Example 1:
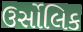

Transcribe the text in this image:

ઉર્સોલિક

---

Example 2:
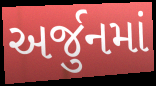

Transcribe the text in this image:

અર્જુનમાં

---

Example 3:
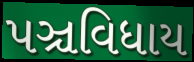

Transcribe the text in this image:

પઞ્ચવિધાય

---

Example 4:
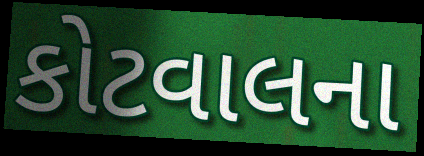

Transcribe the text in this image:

કોટવાલના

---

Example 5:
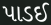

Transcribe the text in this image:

પાડઈ